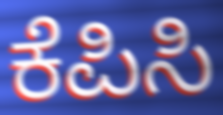
ಕೆಪಿಸಿ